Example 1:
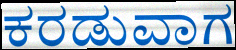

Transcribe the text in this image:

ಕರಡುವಾಗ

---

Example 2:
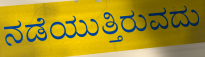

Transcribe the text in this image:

ನಡೆಯುತ್ತಿರುವದು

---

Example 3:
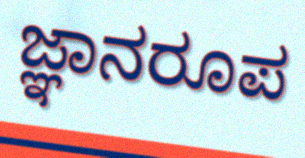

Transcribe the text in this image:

ಜ್ಞಾನರೂಪ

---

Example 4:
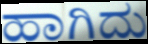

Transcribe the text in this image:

ಹಾಗಿದು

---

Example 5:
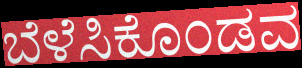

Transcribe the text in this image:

ಬೆಳೆಸಿಕೊಂಡವ